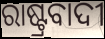
ରାଷ୍ଟ୍ରବାଦୀ